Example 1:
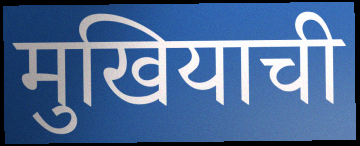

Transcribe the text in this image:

मुखियाची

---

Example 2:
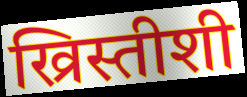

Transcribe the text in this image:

ख्रिस्तीशी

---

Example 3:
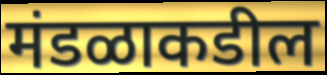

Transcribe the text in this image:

मंडळाकडील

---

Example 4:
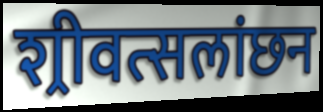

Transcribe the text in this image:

श्रीवत्सलांछन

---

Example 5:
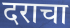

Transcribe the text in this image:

दराचा